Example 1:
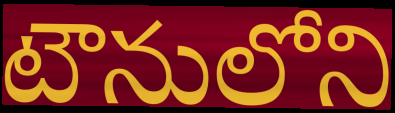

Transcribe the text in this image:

టౌనులోని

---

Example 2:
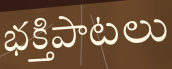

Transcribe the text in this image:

భక్తిపాటలు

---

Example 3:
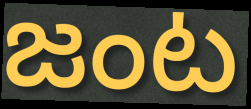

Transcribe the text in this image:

జంట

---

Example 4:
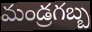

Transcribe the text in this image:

మండ్రగబ్బ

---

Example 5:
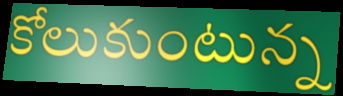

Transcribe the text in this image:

కోలుకుంటున్న